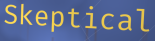
Skeptical